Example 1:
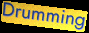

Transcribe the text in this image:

Drumming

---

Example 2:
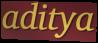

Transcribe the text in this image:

aditya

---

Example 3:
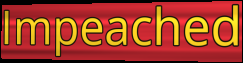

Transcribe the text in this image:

Impeached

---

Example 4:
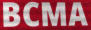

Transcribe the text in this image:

BCMA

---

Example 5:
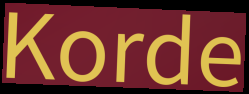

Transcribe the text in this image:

Korde